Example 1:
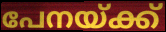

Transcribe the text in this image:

പേനയ്ക്ക്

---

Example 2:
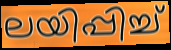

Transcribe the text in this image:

ലയിപ്പിച്ച്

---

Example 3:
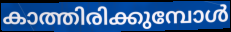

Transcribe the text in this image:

കാത്തിരിക്കുമ്പോൾ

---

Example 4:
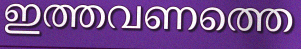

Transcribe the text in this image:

ഇത്തവണത്തെ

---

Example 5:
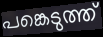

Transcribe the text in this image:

പങ്കെടുത്ത്